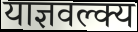
याज्ञवल्क्य